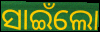
ସାଇଁଲୋ